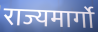
राज्यमार्गो